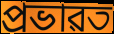
প্ৰভাৱত